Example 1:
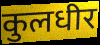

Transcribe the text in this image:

कुलधीर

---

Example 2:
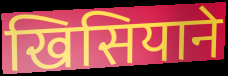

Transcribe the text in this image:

खिसियाने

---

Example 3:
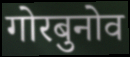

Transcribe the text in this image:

गोरबुनोव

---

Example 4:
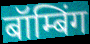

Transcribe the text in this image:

बॉम्बिंग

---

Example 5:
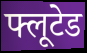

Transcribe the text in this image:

फ्लूटेड